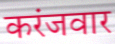
करंजवार